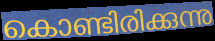
കൊണ്ടിരിക്കുന്നു